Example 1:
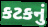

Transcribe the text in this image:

કટકનું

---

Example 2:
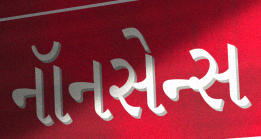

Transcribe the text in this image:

નૉનસેન્સ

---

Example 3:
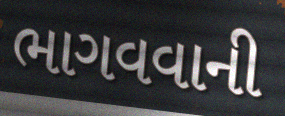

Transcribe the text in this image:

ભાગવવાની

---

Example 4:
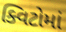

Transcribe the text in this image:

ક્વિટોમાં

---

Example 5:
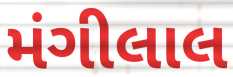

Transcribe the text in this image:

મંગીલાલ